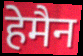
हेमैन